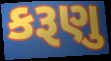
કરૂણુ